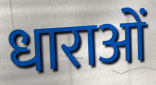
धाराओं